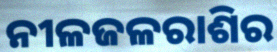
ନୀଳଜଳରାଶିର